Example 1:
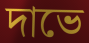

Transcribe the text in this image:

দাভে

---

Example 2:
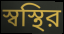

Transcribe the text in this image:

স্বস্থির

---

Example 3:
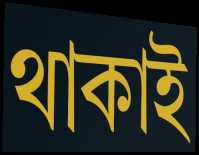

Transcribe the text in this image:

থাকাই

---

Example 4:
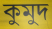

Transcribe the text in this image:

কুমুদ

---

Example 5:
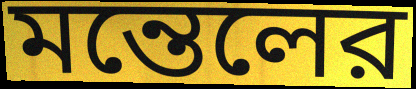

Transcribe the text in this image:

মন্তেলের